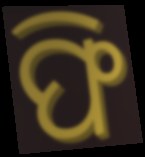
ଫି